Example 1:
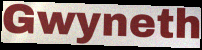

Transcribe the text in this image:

Gwyneth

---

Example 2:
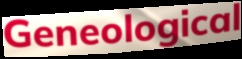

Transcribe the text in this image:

Geneological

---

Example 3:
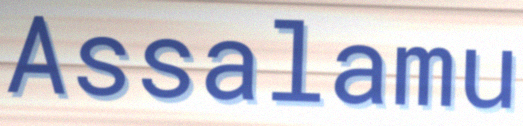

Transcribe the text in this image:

Assalamu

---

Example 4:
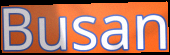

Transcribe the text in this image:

Busan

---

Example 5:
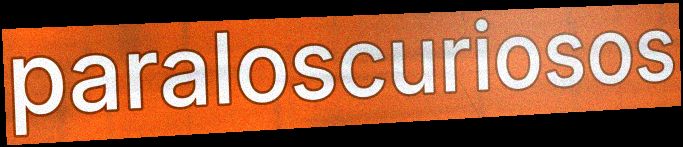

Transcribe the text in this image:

paraloscuriosos